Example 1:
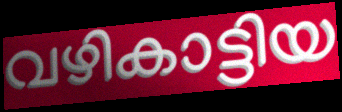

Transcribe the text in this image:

വഴികാട്ടിയ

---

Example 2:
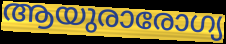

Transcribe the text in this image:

ആയുരാരോഗ്യ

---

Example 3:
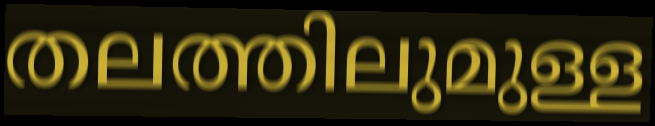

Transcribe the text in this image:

തലത്തിലുമുള്ള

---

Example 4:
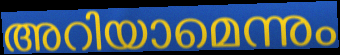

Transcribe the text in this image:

അറിയാമെന്നും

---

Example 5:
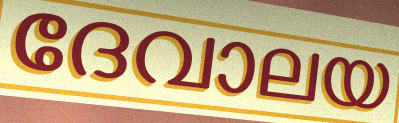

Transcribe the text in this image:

ദേവാലയ